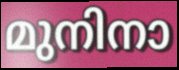
മുനിനാ